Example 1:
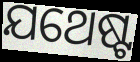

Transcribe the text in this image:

ଯଥେଷ୍ଟ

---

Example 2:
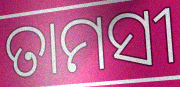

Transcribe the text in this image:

ତାମସୀ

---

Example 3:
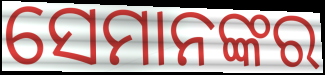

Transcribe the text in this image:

ସେମାନଙ୍କର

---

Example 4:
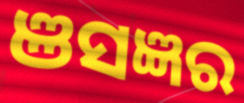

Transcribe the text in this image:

ଞସଜ୍ଞର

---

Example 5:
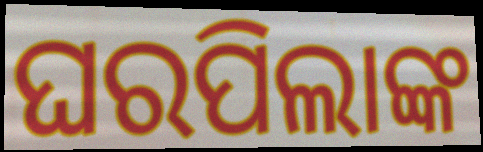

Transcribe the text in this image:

ଘରପିଲାଙ୍କ